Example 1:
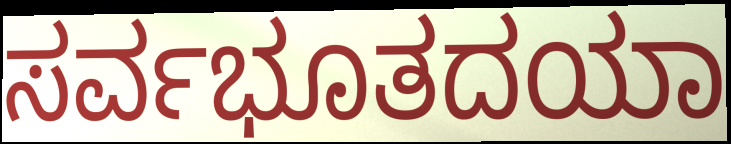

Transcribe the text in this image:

ಸರ್ವಭೂತದಯಾ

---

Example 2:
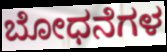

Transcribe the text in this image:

ಬೋಧನೆಗಳ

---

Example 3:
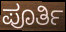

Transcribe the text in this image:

ಪೂರ್ತಿ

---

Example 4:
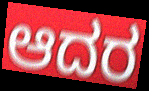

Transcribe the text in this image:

ಆದರ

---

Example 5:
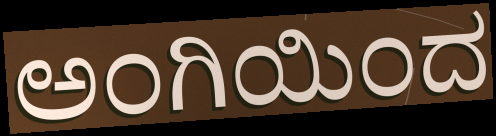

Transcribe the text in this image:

ಅಂಗಿಯಿಂದ